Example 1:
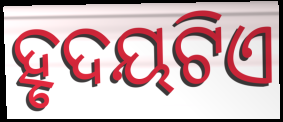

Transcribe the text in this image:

ହୃଦୟଟିଏ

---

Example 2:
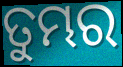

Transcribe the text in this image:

ତୁମ୍ଭର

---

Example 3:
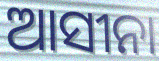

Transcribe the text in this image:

ଆସୀନା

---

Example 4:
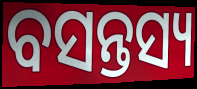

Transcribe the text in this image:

ବସନ୍ତସ୍ୟ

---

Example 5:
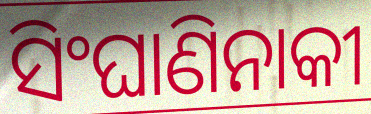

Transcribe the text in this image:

ସିଂଘାଣିନାକୀ